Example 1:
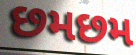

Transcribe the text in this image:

છમછમ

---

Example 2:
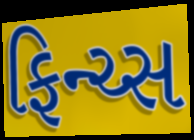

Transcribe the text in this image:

ફિન્ચ્સ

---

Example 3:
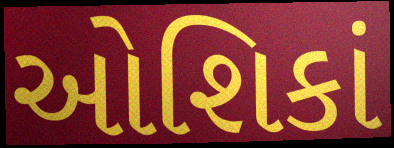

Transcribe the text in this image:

ઓશિકાં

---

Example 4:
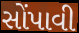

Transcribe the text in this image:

સોંપાવી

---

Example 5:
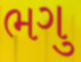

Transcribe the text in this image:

ભગુ